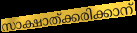
സാക്ഷാത്ക്കരിക്കാന്